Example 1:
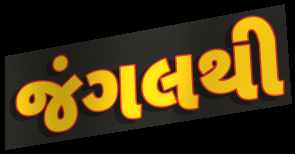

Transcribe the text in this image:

જંગલથી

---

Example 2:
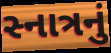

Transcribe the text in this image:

સ્નાત્રનું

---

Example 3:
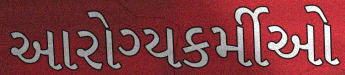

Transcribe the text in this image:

આરોગ્યકર્મીઓ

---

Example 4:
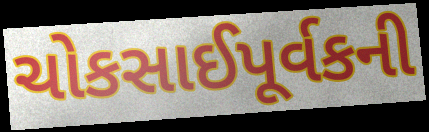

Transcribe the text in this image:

ચોકસાઈપૂર્વકની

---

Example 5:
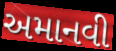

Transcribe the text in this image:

અમાનવી